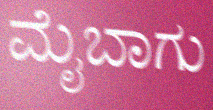
ಮೈಬಾಗು